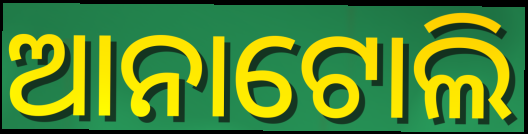
ଆନାଟୋଲି